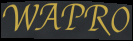
WAPRO